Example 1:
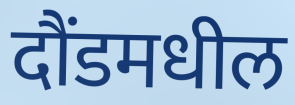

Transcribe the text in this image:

दौंडमधील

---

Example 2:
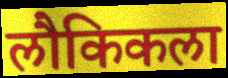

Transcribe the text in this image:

लौकिकला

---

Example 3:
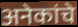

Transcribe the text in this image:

अनेकांचे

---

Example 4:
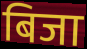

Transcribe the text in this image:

बिजा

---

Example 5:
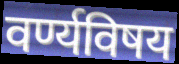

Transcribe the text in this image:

वर्ण्यविषय